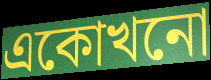
একোখনো